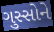
ગુસ્સોને